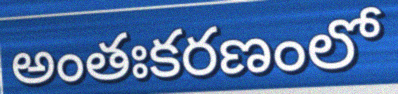
అంతఃకరణంలో